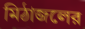
মিঠাজলের